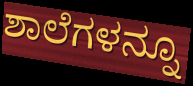
ಶಾಲೆಗಳನ್ನೂ